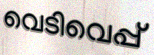
വെടിവെപ്പ്